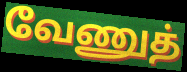
வேணுத்